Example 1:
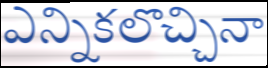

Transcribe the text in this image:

ఎన్నికలొచ్చినా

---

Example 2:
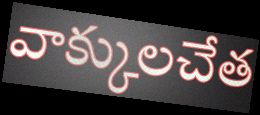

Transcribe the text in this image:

వాక్కులచేత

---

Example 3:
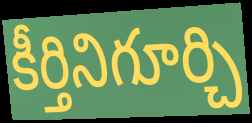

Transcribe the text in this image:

కీర్తినిగూర్చి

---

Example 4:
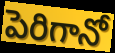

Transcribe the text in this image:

పెరిగానో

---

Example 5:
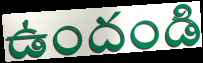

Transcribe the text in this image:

ఉందండి